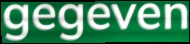
gegeven